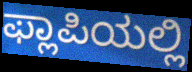
ಫ್ಲಾಪಿಯಲ್ಲಿ